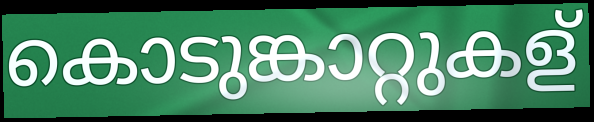
കൊടുങ്കാറ്റുകള്